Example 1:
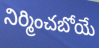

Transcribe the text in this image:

నిర్మించబోయే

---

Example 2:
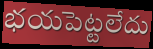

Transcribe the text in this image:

భయపెట్టలేదు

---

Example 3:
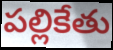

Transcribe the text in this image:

పల్లికేతు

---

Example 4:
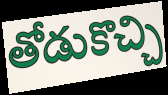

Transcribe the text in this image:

తోడుకొచ్చి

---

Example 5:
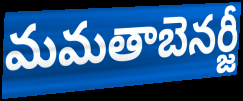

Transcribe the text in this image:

మమతాబెనర్జీ